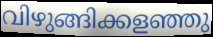
വിഴുങ്ങിക്കളഞ്ഞു